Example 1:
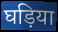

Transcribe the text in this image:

घड़िया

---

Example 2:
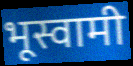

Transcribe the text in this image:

भूस्वामी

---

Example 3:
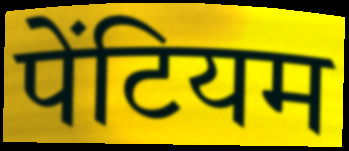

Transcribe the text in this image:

पेंटियम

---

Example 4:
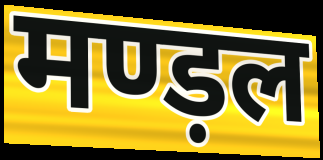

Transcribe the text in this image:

मण्ड़ल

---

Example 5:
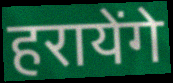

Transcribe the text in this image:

हरायेंगे